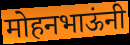
मोहनभाऊंनी